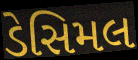
ડેસિમલ